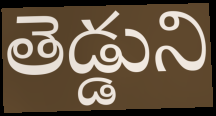
తెడ్డుని